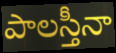
పాలస్తీనా